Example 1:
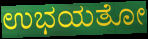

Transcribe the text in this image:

ಉಭಯತೋ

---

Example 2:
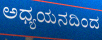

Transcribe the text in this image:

ಅಧ್ಯಯನದಿಂದ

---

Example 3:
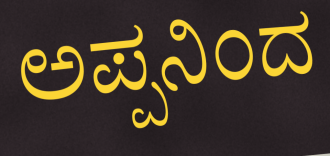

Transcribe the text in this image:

ಅಪ್ಪನಿಂದ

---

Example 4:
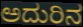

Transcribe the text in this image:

ಅದುರಿನ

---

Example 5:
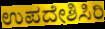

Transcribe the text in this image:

ಉಪದೇಶಿಸಿರಿ